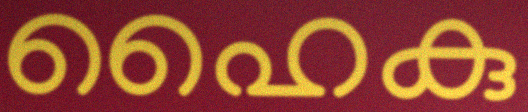
ഹൈകു